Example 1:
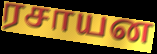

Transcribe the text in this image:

ரசாயன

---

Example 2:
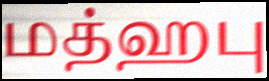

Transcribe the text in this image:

மத்ஹபு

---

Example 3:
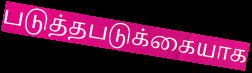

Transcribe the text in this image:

படுத்தபடுக்கையாக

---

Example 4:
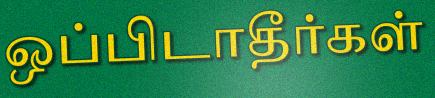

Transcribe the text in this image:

ஒப்பிடாதீர்கள்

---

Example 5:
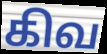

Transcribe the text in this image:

கிவ